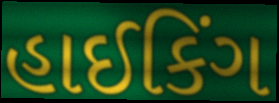
હાઈકિંગ